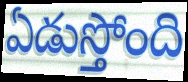
ఏడుస్తోంది